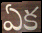
ఏక